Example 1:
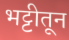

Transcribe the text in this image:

भट्टीतून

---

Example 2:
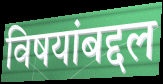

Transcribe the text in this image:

विषयांबद्दल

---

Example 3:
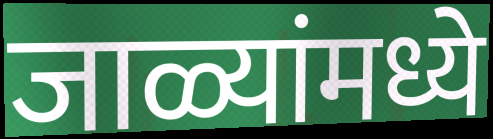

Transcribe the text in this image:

जाळ्यांमध्ये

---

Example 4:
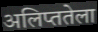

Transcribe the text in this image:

अलिप्ततेला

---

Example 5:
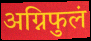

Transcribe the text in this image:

अग्निफुलं